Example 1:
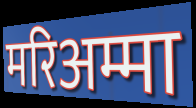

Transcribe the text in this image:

मरिअम्मा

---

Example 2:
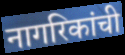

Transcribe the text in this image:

नागरिकांची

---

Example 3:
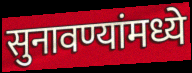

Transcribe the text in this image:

सुनावण्यांमध्ये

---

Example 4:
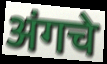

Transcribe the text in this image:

अंगचे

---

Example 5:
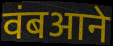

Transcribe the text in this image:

वंबआने